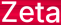
Zeta